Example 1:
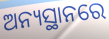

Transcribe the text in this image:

ଅନ୍ୟସ୍ଥାନରେ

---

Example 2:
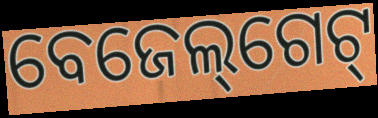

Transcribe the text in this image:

ବେଜେଲ୍‌ଗେଟ୍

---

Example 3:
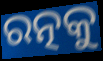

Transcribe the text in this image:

ରତ୍ନକୁ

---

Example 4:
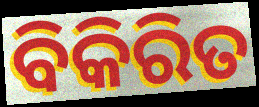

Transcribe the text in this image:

ବିକିରିତ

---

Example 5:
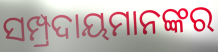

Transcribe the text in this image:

ସମ୍ପ୍ରଦାୟମାନଙ୍କର